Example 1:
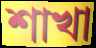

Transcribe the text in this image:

শাখা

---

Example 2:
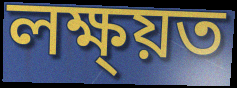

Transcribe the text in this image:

লক্ষ্য়ত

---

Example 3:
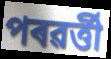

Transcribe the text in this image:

পৰৱৰ্ত্তী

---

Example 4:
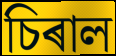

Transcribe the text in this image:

চিৰাল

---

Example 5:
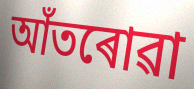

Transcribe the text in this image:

আঁতৰোৱা